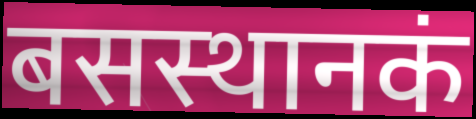
बसस्थानकं